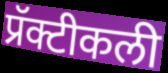
प्रॅक्टीकली